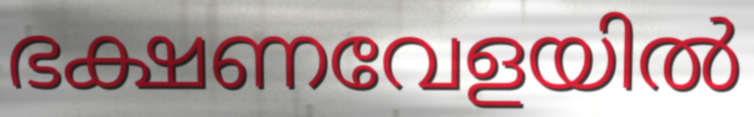
ഭക്ഷണവേളയിൽ